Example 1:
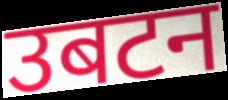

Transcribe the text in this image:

उबटन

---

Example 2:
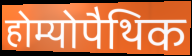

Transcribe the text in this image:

होम्‍योपैथिक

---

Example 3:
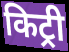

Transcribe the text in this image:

किट्री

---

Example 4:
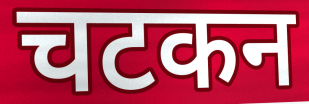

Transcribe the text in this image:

चटकन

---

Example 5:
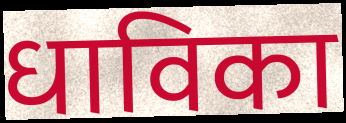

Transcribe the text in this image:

धाविका